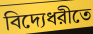
বিদ্যেধরীতে